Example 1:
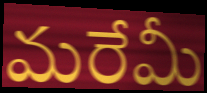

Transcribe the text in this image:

మరేమీ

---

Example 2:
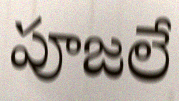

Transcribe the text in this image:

పూజలే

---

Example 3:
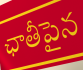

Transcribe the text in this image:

ఛాతీపైన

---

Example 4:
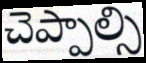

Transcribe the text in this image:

చెప్పాల్సి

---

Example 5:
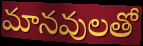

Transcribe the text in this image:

మానవులతో